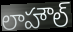
లాహౌల్